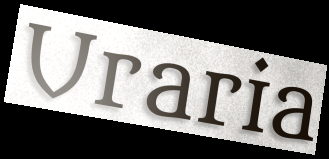
Uraria